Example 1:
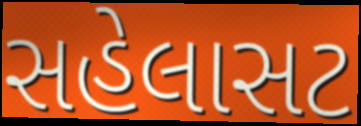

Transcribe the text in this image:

સહેલાસટ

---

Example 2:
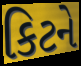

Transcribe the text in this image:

કિટને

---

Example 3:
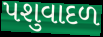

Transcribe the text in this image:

પશુવાદળ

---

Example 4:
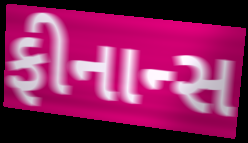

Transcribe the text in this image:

ફીનાન્સ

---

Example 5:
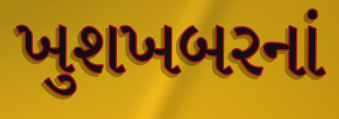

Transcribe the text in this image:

ખુશખબરનાં